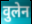
वुलेन